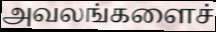
அவலங்களைச்